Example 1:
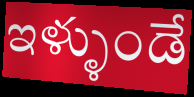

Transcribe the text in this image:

ఇళ్ళుండే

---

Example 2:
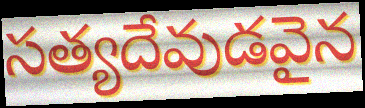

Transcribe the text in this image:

సత్యదేవుడవైన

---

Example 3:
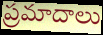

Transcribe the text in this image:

ప్రమాదాలు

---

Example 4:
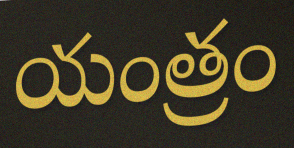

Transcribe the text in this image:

యంత్రం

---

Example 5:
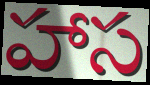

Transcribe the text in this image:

హాస